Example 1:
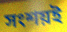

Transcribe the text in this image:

সংশয়ই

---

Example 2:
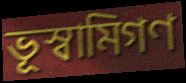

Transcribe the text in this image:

ভূস্বামিগণ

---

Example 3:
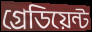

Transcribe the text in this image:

গ্রেডিয়েন্ট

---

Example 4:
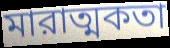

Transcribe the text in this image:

মারাত্মকতা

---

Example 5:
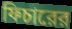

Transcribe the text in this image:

ফিচারের